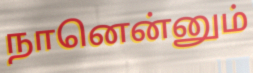
நானென்னும்